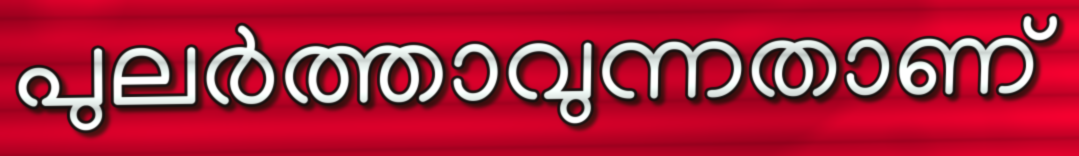
പുലർത്താവുന്നതാണ്